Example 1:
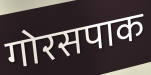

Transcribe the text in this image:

गोरसपाक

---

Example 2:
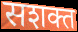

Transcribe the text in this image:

सशक्त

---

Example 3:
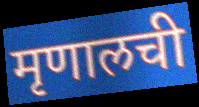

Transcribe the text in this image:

मृणालची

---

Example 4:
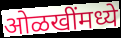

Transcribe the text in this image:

ओळखींमध्ये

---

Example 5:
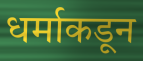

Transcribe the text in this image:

धर्माकडून